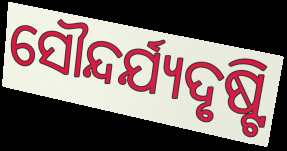
ସୌନ୍ଦର୍ଯ୍ୟଦୃଷ୍ଟି